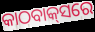
କାଠବାକ୍‍ସରେ